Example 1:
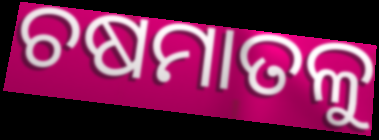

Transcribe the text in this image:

ଚଷମାତଳୁ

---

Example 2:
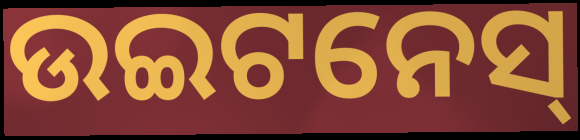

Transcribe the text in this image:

ଉଇଟନେସ୍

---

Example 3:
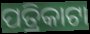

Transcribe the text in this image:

ପତ୍ରିକାଟା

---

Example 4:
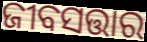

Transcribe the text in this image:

ଜୀବସତ୍ତାର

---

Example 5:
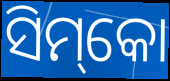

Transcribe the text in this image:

ସିମ୍‌କୋ